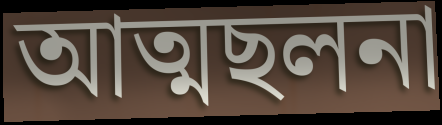
আত্মছলনা